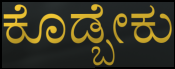
ಕೊಡ್ಬೇಕು